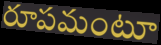
రూపమంటూ